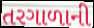
તરગાળાની